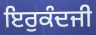
ਇਰੁਕੰਦਜੀ